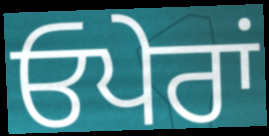
ਓਪੇਰਾਂ